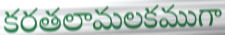
కరతలామలకముగా